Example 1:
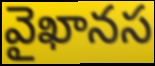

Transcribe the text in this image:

వైఖానస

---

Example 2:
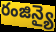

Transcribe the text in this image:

రంజిన్యై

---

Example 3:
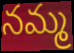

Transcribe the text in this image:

నమ్మ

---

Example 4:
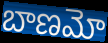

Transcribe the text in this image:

బాణమో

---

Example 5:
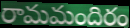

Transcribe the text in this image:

రామమందిరం